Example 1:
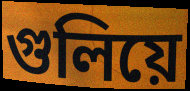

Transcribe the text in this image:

গুলিয়ে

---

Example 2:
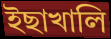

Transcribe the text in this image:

ইছাখালি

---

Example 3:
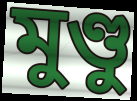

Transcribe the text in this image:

মুণ্ডু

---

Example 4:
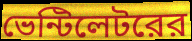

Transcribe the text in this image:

ভেন্টিলেটরের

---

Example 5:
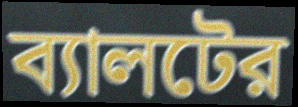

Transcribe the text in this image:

ব্যালটের